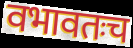
वभावतःच